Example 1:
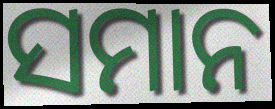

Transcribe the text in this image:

ସମାନ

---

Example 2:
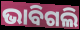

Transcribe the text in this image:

ଭାବିଗଲି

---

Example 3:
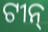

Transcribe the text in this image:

ଟୀନ୍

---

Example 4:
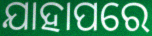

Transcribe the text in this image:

ଯାହାପରେ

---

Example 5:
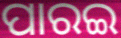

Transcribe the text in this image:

ପାରଇ